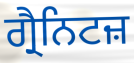
ਗ੍ਰੈਨਿਟਜ਼